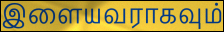
இளையவராகவும்